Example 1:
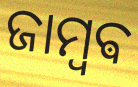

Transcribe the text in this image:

ଜାମ୍ବଵ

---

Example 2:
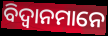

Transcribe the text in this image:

ବିଦ୍ଵାନମାନେ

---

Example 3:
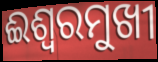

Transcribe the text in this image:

ଈଶ୍ୱରମୁଖୀ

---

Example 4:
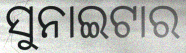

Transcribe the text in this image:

ସୁନାଇଟାର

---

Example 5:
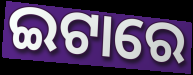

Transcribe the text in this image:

ଇଟାରେ